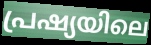
പ്രഷ്യയിലെ